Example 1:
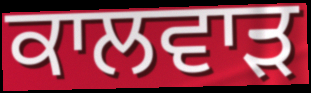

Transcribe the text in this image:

ਕਾਲਵਾੜ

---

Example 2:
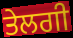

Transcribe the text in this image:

ਤੇਲਗੀ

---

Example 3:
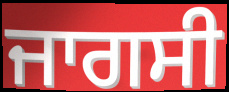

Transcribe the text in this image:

ਜਾਗਸੀ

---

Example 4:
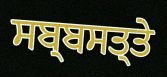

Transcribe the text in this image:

ਸਬ੍ਬਸਤ੍ਤੇ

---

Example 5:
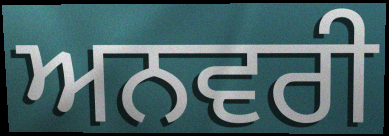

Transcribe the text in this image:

ਅਨਵਰੀ